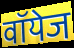
वॉयेज